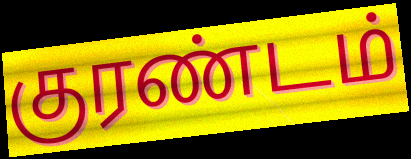
குரண்டம்